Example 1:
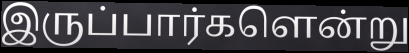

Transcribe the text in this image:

இருப்பார்களென்று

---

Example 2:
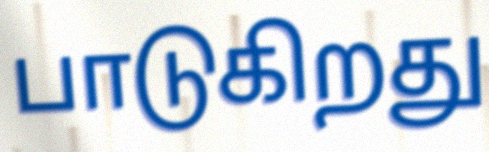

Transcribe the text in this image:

பாடுகிறது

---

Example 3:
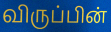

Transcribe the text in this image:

விருப்பின்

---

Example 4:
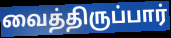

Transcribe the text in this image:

வைத்திருப்பார்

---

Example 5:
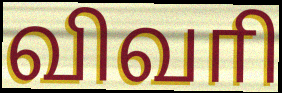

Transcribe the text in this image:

விவரி